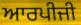
ਆਰਪੀਜੀ